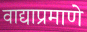
वाद्याप्रमाणे